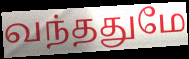
வந்ததுமே